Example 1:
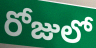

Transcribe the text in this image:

రోజులో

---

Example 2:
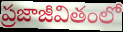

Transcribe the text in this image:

ప్రజాజీవితంలో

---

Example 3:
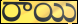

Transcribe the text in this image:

రాయి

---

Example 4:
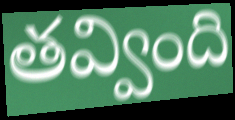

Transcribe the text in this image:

తవ్వింది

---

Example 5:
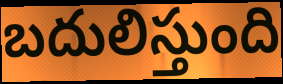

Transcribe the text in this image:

బదులిస్తుంది